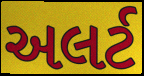
અલર્ટ